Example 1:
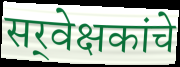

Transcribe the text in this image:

सर्वेक्षकांचे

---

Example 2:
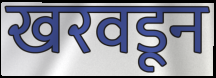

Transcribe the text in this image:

खरवडून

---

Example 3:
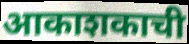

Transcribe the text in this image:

आकाशकाची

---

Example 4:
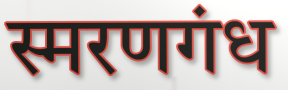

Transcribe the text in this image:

स्मरणगंध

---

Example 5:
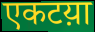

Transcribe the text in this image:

एकटय़ा